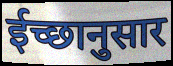
ईच्छानुसार